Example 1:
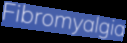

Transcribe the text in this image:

Fibromyalgia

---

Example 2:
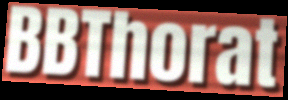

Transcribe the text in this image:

BBThorat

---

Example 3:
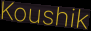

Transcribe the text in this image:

Koushik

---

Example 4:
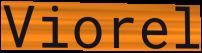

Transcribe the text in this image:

Viorel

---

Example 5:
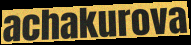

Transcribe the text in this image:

achakurova